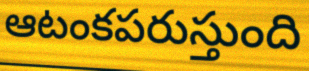
ఆటంకపరుస్తుంది